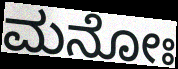
ಮನೋಃ